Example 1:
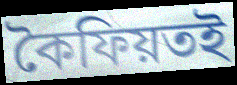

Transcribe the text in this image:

কৈফিয়তই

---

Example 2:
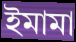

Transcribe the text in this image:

ইমামা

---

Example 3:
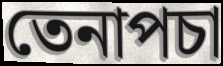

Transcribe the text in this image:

তেনাপচা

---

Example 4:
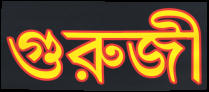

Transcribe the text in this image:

গুরুজী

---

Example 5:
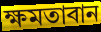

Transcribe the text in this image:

ক্ষমতাবান